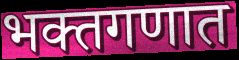
भक्तगणात